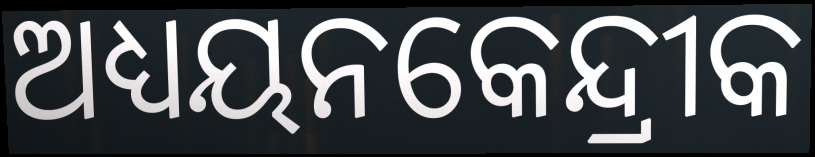
ଅଧ୍ୟୟନକେନ୍ଦ୍ରୀକ